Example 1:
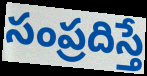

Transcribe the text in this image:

సంప్రదిస్తే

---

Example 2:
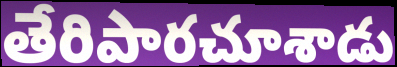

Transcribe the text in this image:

తేరిపారచూశాడు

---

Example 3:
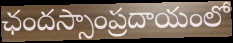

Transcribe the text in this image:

ఛందస్సాంప్రదాయంలో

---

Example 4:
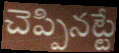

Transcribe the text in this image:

చెప్పినట్టే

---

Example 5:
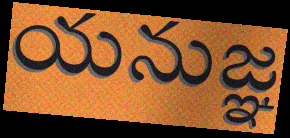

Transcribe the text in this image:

యనుజ్ఞ